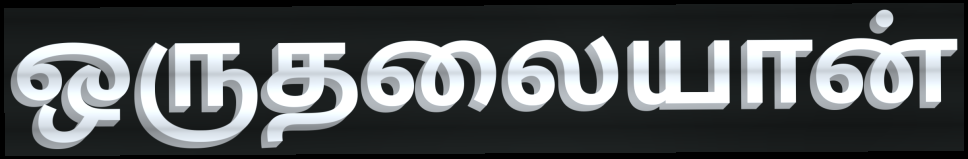
ஒருதலையான்